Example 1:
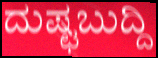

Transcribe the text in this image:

ದುಷ್ಟಬುದ್ದಿ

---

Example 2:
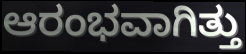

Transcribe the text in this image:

ಆರಂಭವಾಗಿತ್ತು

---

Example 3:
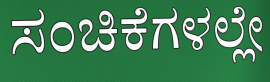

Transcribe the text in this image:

ಸಂಚಿಕೆಗಳಲ್ಲೇ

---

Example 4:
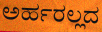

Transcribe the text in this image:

ಅರ್ಹರಲ್ಲದ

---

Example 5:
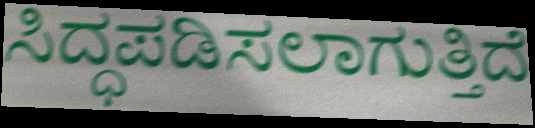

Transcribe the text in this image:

ಸಿದ್ಧಪಡಿಸಲಾಗುತ್ತಿದೆ